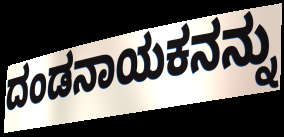
ದಂಡನಾಯಕನನ್ನು